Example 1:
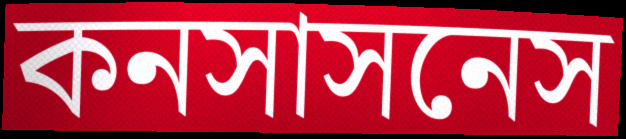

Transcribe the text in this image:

কনসাসনেস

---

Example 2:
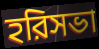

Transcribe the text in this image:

হরিসভা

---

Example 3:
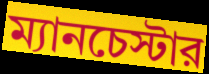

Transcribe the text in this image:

ম্যানচেস্টার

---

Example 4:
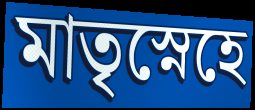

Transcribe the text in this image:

মাতৃস্নেহে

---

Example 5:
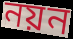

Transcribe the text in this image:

নয়ন